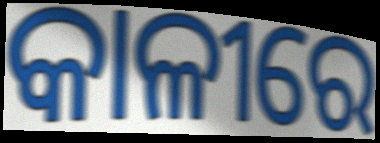
କାଳୀରେ